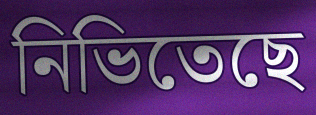
নিভিতেছে